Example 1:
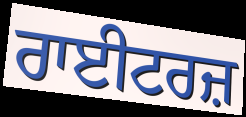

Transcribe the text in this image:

ਰਾਈਟਰਜ਼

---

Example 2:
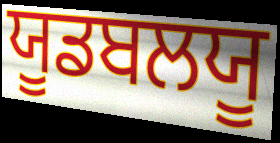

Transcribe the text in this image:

ਯੂਡਬਲਯੂ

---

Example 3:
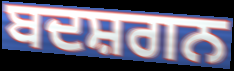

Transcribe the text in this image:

ਬਦਸ਼ਗਨ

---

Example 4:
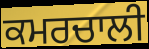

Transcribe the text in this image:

ਕਮਰਚਾਲੀ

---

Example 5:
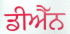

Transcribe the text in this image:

ਡੀਐੱਨ